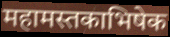
महामस्तकाभिषेक